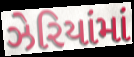
ઝેરિયાંમાં